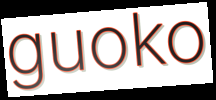
guoko